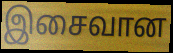
இசைவான